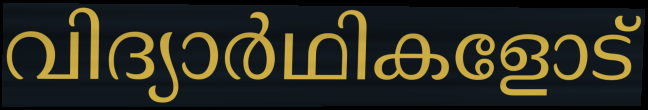
വിദ്യാർഥികളോട്